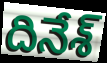
దినేశ్